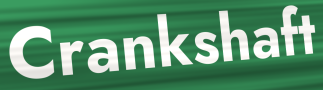
Crankshaft